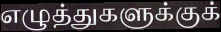
எழுத்துகளுக்குக்